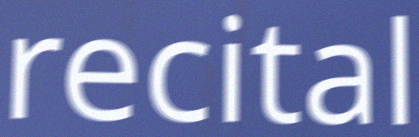
recital